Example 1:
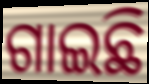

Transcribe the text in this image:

ଗାଇଛି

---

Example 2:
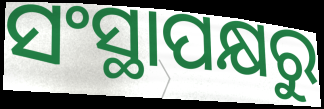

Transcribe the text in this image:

ସଂସ୍ଥାପକ୍ଷରୁ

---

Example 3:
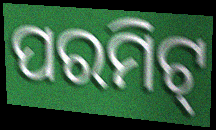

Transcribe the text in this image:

ପରମିଟ୍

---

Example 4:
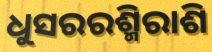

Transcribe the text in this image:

ଧୁସରରଶ୍ମିରାଶି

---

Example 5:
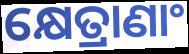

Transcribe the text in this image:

କ୍ଷେତ୍ରାଣାଂ